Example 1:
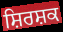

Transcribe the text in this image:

ਸ਼ਿਰਸ਼ਕ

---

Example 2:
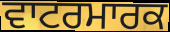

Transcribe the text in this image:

ਵਾਟਰਮਾਰਕ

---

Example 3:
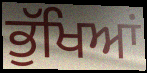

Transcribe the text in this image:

ਭੁੱਖਿਆਂ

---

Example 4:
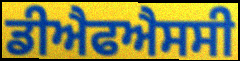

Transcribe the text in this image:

ਡੀਐਫਐਸਸੀ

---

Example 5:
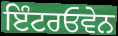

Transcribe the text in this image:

ਇੰਟਰਓਵੇਨ